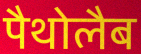
पैथोलैब